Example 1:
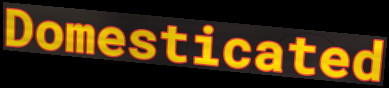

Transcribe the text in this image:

Domesticated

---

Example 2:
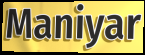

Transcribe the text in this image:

Maniyar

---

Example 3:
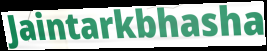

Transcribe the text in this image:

Jaintarkbhasha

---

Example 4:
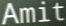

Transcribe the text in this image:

Amit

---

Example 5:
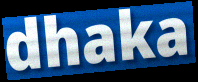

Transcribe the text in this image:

dhaka